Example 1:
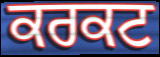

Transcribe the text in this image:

ਕਰਕਟ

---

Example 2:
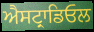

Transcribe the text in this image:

ਐਸਟ੍ਰਾਡਿਓਲ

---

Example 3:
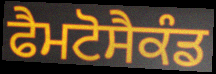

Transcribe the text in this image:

ਫੈਮਟੋਸੈਕੰਡ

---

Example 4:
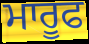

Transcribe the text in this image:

ਮਾਰੂਫ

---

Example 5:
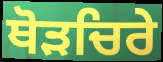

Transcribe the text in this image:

ਥੋੜਚਿਰੇ